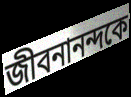
জীবনানন্দকে